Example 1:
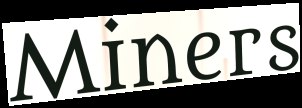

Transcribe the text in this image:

Miners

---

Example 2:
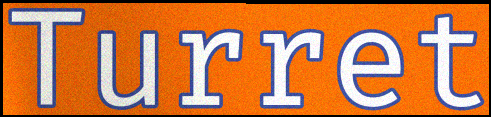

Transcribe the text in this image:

Turret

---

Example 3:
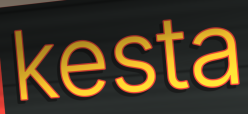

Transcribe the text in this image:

kesta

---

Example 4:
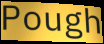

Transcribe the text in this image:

Pough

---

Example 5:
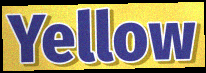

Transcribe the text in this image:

Yellow